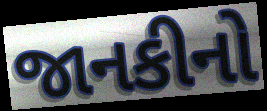
જાનકીનો